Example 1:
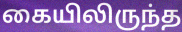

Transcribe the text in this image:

கையிலிருந்த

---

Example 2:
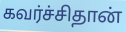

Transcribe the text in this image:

கவர்ச்சிதான்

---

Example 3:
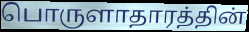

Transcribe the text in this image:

பொருளாதாரத்தின்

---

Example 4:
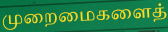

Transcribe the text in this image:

முறைமைகளைத்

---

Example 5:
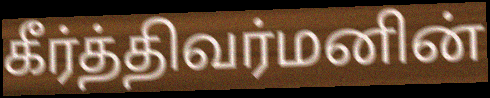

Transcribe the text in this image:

கீர்த்திவர்மனின்